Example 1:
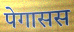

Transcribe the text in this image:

पेगासस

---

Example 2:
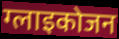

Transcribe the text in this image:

ग्लाइकोजन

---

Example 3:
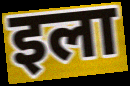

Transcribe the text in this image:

इला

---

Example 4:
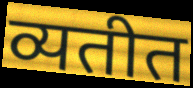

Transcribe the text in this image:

व्यतीत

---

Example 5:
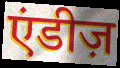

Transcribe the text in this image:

एंडीज़